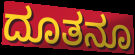
ದೂತನೂ